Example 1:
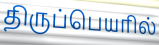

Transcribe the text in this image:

திருப்பெயரில்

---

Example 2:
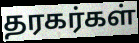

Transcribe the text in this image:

தரகர்கள்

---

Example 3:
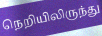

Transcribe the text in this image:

நெறியிலிருந்து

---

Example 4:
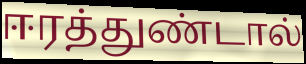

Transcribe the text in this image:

ஈரத்துண்டால்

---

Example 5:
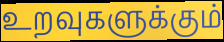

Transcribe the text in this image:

உறவுகளுக்கும்